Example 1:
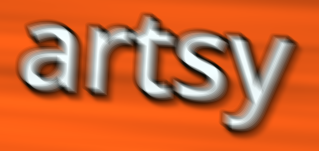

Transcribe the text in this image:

artsy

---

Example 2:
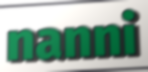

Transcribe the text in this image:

nanni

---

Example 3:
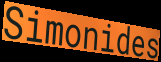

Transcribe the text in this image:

Simonides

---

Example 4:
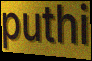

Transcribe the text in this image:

puthi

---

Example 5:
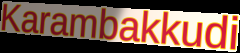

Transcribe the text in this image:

Karambakkudi